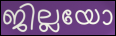
ജില്ലയോ